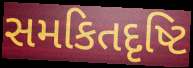
સમકિતદૃષ્ટિ